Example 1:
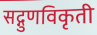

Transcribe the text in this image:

सद्गुणविकृती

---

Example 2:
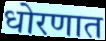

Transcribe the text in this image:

धोरणात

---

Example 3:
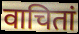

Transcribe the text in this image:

वाचितां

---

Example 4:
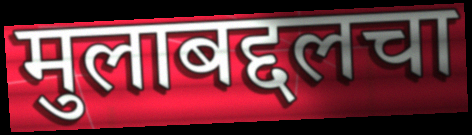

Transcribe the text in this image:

मुलाबद्दलचा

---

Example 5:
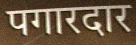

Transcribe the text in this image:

पगारदार